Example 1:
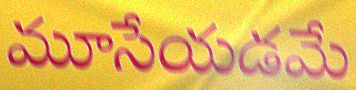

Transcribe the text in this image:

మూసేయడమే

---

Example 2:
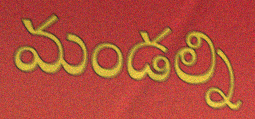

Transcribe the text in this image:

మండల్ని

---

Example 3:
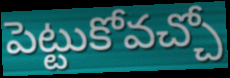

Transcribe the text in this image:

పెట్టుకోవచ్చో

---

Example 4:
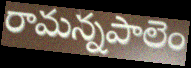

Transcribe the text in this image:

రామన్నపాలెం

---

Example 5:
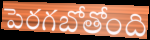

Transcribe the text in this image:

పెరగబోతోంది